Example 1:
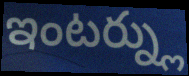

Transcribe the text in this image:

ఇంటర్న్లు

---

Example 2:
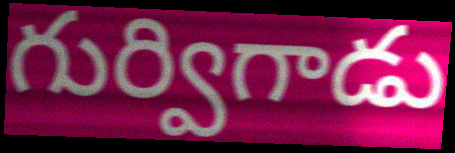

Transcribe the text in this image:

గుర్విగాడు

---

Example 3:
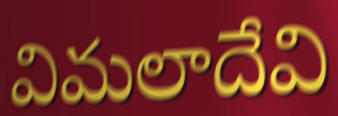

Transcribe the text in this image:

విమలాదేవి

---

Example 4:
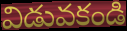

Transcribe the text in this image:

విడువకండి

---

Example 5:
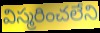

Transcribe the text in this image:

విస్మరించలేని